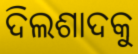
ଦିଲଶାଦକୁ